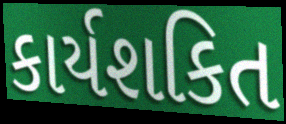
કાર્યશકિત